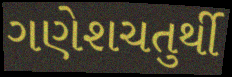
ગણેશચતુર્થી